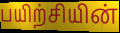
பயிற்சியின்